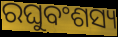
ରଘୁବଂଶସ୍ୟ